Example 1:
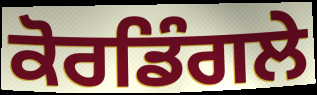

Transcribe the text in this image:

ਕੋਰਡਿੰਗਲੇ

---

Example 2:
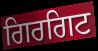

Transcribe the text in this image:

ਗਿਰਗਿਟ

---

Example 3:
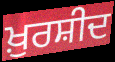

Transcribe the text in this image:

ਖ਼ੁਰਸ਼ੀਦ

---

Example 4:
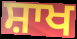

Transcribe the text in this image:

ਸ਼ਾਖ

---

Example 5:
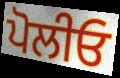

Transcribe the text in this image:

ਪੋਲੀਓ